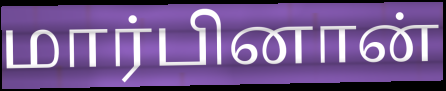
மார்பினான்